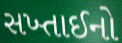
સખ્તાઈનો